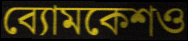
ব্যোমকেশও